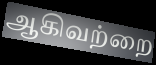
ஆகிவற்றை